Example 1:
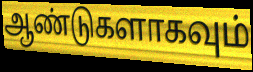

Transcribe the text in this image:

ஆண்டுகளாகவும்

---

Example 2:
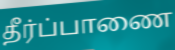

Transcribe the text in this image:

தீர்ப்பாணை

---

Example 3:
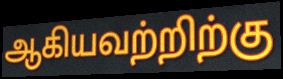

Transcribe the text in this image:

ஆகியவற்றிற்கு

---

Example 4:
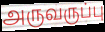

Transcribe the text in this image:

அருவருப்பு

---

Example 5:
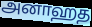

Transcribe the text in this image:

அனாஹத